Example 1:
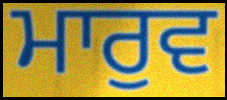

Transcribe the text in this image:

ਮਾਰੁਵ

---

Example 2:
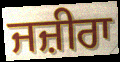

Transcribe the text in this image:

ਜਜ਼ੀਰਾ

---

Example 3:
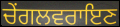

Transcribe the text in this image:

ਚੇਂਗਲਵਰਾਇਣ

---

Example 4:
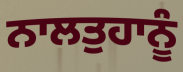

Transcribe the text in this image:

ਨਾਲਤੁਹਾਨੂੰ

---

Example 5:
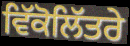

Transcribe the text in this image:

ਵਿੱਕੋਲਿੱਤਰੇ